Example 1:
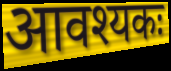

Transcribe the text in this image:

आवश्यकः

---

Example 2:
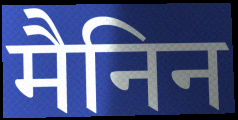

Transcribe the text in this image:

मैनिन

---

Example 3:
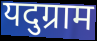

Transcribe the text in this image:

यदुग्राम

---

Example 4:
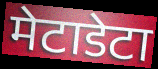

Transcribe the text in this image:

मेटाडेटा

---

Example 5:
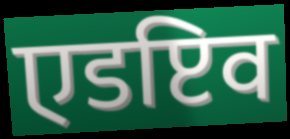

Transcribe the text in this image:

एडप्टिव